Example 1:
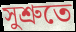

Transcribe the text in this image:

সুশ্ৰুতে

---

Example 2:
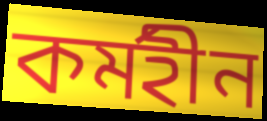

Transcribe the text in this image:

কৰ্মহীন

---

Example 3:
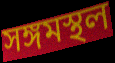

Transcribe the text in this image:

সঙ্গমস্থল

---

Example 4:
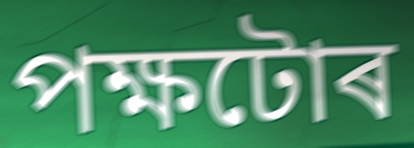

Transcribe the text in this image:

পক্ষটোৰ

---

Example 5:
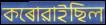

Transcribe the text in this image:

কৰোৱাইছিল